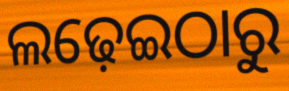
ଲଢ଼େଇଠାରୁ